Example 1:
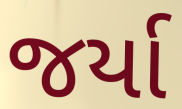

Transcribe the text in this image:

જર્યા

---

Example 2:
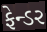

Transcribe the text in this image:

ફેન્ડર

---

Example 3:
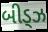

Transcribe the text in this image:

બીડ્ઝ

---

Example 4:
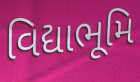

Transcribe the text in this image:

વિદ્યાભૂમિ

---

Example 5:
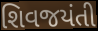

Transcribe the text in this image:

શિવજયંતી